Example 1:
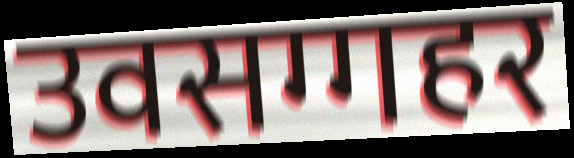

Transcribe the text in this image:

उवसग्गहर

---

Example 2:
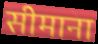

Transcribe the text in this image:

सीमाना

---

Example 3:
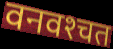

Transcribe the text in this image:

वनवश्चत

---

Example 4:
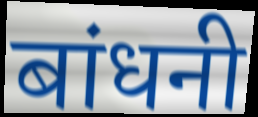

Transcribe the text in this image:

बांधनी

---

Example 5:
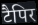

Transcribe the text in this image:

टैपिर